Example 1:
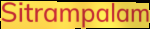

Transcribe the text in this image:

Sitrampalam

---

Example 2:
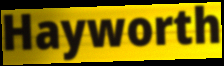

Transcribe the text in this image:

Hayworth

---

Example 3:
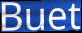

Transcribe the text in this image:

Buet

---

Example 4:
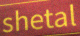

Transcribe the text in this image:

shetal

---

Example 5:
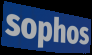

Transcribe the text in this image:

sophos